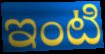
ఇంటి